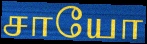
சாயோ